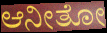
ಆನೀತೋ